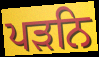
ਪੜਨਿ